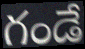
గండే